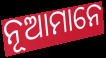
ନୂଆମାନେ